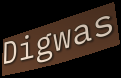
Digwas